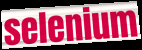
selenium